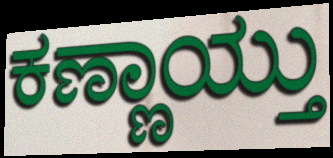
ಕಣ್ಣಾಯ್ತು